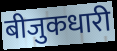
बीजुकधारी